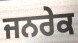
ਜਨਰੇਕ